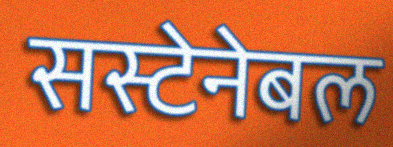
सस्टेनेबल